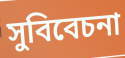
সুবিবেচনা